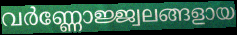
വർണ്ണോജ്ജ്വലങ്ങളായ